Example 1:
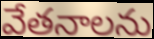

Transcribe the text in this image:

వేతనాలను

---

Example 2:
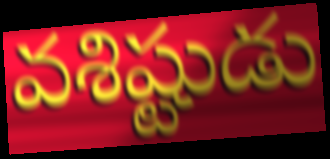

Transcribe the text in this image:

వశిష్టుడు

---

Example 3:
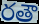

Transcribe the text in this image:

రతౌ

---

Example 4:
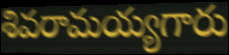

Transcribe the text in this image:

శివరామయ్యగారు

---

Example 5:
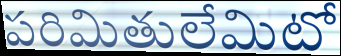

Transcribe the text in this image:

పరిమితులేమిటో